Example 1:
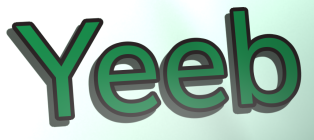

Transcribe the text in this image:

Yeeb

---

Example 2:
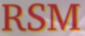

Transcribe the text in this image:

RSM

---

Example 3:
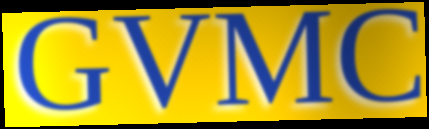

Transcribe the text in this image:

GVMC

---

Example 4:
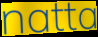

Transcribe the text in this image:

natta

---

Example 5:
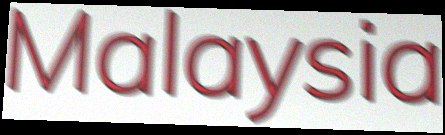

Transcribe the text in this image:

Malaysia